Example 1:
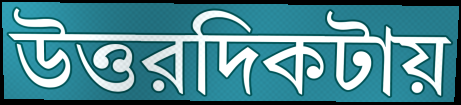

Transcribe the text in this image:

উত্তরদিকটায়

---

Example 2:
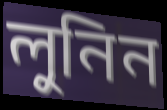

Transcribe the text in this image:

লুনিন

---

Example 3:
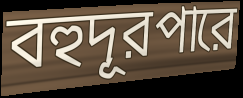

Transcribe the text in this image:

বহুদূরপারে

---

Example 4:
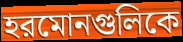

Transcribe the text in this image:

হরমোনগুলিকে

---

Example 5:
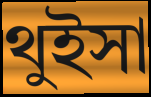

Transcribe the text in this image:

থুইসা